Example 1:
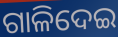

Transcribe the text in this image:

ଗାଳିଦେଇ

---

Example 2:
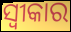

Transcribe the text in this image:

ସ୍ଵୀକାର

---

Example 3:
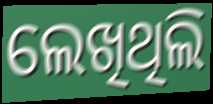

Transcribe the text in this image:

ଲେଖିଥିଲି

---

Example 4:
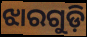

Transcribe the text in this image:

ଝାରଗୁଡ଼ି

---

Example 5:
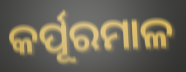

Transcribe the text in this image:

କର୍ପୂରମାଳ